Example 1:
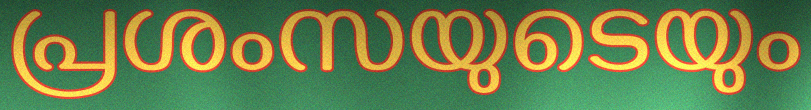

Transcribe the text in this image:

പ്രശംസയുടെയും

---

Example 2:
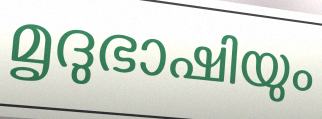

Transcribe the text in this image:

മൃദുഭാഷിയും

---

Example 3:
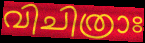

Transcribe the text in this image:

വിചിത്രാഃ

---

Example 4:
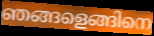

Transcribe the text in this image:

ഞങ്ങളെങ്ങിനെ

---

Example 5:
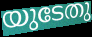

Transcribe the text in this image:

യുടേതു